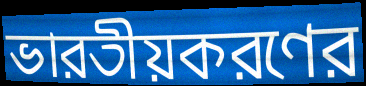
ভারতীয়করণের